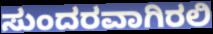
ಸುಂದರವಾಗಿರಲಿ